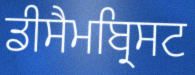
ਡੀਸੈਮਬ੍ਰਿਸਟ